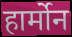
हार्मोन